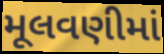
મૂલવણીમાં